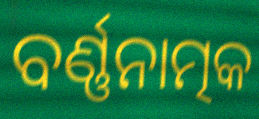
ବର୍ଣ୍ଣନାତ୍ମକ